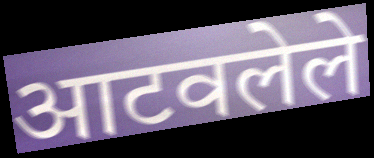
आटवलेले